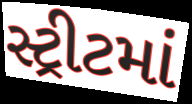
સ્ટ્રીટમાં